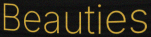
Beauties